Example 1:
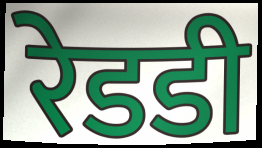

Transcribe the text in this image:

रेडडी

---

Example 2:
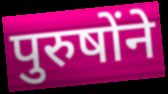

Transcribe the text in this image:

पुरुषोंने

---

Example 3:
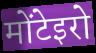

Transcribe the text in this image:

मोंटेइरो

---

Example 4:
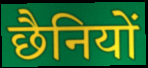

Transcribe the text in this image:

छैनियों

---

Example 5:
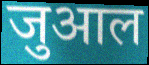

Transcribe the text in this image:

जुआल